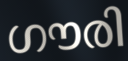
ഗൗരി